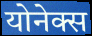
योनेक्स